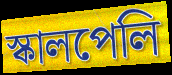
স্কালপেলি